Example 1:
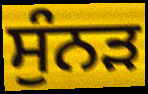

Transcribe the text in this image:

ਸੁੰਨੜ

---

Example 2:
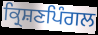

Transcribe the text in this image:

ਕ੍ਰਿਸ਼ਣਪਿੰਗਲ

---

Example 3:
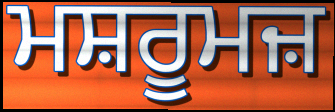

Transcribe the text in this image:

ਮਸ਼ਰੂਮਜ਼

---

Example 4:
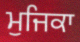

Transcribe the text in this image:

ਮੁਜਿਕਾ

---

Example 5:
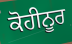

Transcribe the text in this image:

ਕੋਹੀਨੂਰ